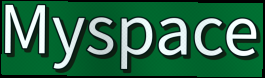
Myspace